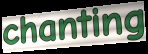
chanting